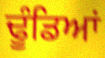
ਢੂੰਡਿਆਂ